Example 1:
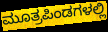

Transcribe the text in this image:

ಮೂತ್ರಪಿಂಡಗಳಲ್ಲಿ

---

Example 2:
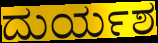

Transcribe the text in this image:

ದುರ್ಯಶ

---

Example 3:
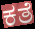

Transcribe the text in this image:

ಕತೆ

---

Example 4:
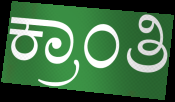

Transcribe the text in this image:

ಕ್ರಾಂತಿ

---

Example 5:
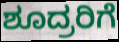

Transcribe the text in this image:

ಶೂದ್ರರಿಗೆ